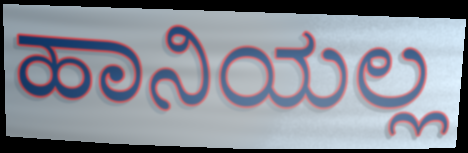
ಹಾನಿಯಲ್ಲ